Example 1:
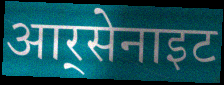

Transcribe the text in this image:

आर्सेनाइट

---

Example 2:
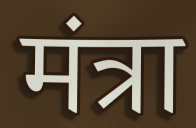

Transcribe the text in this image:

मंत्रा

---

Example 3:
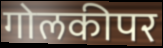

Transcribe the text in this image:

गोलकीपर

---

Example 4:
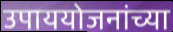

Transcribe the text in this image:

उपाययोजनांच्या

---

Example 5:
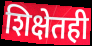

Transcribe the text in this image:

शिक्षेतही